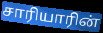
சாரியாரின்